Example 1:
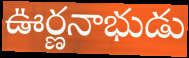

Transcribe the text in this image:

ఊర్ణనాభుడు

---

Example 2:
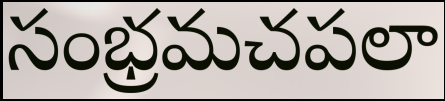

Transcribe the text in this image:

సంభ్రమచపలా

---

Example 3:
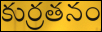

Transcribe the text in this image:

కుర్రతనం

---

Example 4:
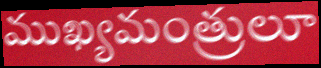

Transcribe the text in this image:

ముఖ్యమంత్రులూ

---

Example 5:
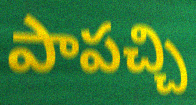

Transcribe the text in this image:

పాపచ్చి